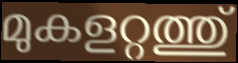
മുകളറ്റത്തു്